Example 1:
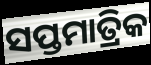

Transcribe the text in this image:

ସପ୍ତମାତ୍ରିକ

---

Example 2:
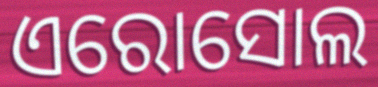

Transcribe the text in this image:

ଏରୋସୋଲ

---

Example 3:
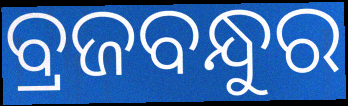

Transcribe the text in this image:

ବ୍ରଜବନ୍ଧୁର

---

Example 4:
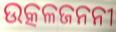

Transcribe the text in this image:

ଉତ୍କଳଜନନୀ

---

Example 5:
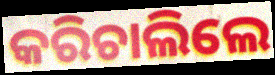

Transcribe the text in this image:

କରିଚାଲିଲେ